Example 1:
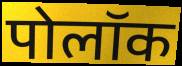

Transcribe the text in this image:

पोलॉक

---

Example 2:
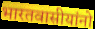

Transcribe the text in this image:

भारतवासीयांनो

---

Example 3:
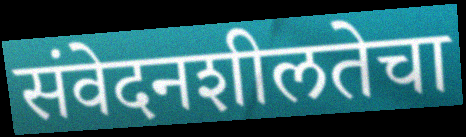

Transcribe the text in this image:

संवेदनशीलतेचा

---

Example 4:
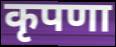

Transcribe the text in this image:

कृपणा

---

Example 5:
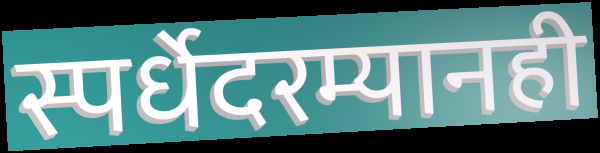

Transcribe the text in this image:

स्पर्धेदरम्यानही